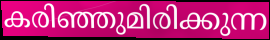
കരിഞ്ഞുമിരിക്കുന്ന